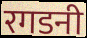
रगडनी